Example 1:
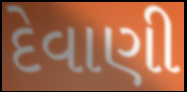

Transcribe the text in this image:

દેવાણી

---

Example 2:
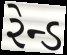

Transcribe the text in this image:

રેન્ડ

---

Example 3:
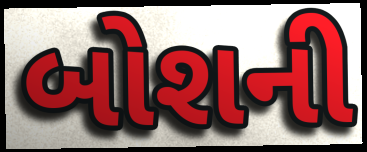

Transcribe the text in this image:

બોશની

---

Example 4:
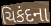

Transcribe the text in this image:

ચિકંદના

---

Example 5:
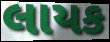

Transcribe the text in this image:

લાયક